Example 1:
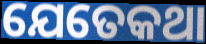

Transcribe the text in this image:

ଯେତେକଥା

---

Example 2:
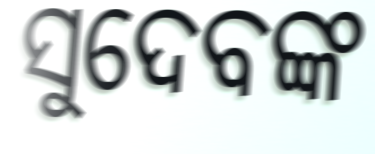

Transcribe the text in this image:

ସୁଦେବଙ୍କ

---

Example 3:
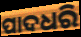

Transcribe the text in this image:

ପାଦଧରି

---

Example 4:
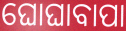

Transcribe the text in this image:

ଘୋଘାବାପା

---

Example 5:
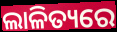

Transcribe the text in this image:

ଲାଳିତ୍ୟରେ